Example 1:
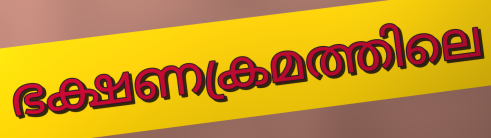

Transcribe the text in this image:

ഭക്ഷണക്രമത്തിലെ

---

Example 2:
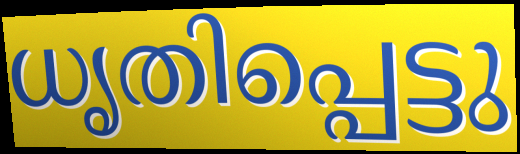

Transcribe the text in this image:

ധൃതിപ്പെട്ടു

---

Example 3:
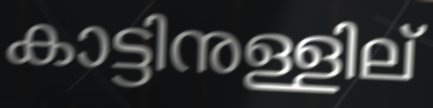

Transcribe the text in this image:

കാട്ടിനുള്ളില്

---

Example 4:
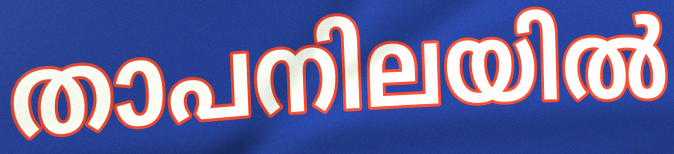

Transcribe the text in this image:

താപനിലയിൽ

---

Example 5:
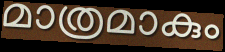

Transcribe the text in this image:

മാത്രമാകും